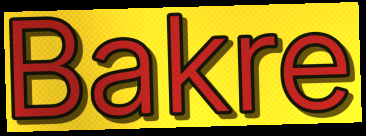
Bakre